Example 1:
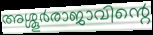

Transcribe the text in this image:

അശ്ശൂർരാജാവിന്റെ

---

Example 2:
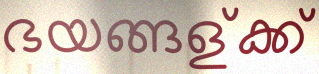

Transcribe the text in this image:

ഭയങ്ങള്ക്ക്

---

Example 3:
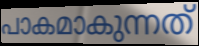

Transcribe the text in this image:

പാകമാകുന്നത്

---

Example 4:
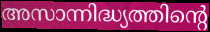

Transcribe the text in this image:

അസാന്നിദ്ധ്യത്തിന്റെ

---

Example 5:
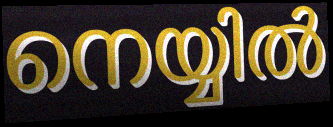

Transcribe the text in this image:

നെയ്യിൽ